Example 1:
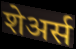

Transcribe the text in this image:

शेअर्स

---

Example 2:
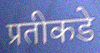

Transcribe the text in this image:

प्रतीकडे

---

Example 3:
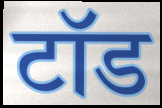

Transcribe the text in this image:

टॉड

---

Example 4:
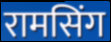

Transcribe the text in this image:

रामसिंग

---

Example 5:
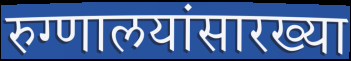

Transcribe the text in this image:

रुग्णालयांसारख्या